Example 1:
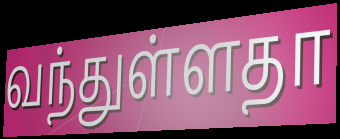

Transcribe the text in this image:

வந்துள்ளதா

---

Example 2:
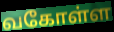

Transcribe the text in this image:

வகோள்ள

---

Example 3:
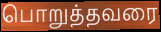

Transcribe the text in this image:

பொறுத்தவரை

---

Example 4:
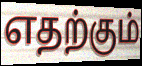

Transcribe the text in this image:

எதற்கும்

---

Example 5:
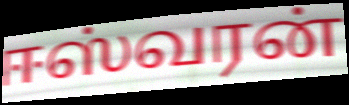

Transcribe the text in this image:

ஈஸ்வரன்